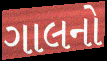
ગાલનો